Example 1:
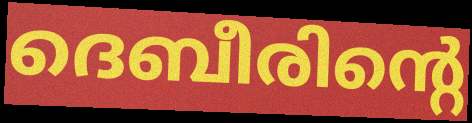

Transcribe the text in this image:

ദെബീരിന്റെ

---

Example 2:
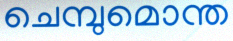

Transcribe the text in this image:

ചെമ്പുമൊന്ത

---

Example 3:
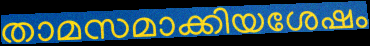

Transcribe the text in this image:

താമസമാക്കിയശേഷം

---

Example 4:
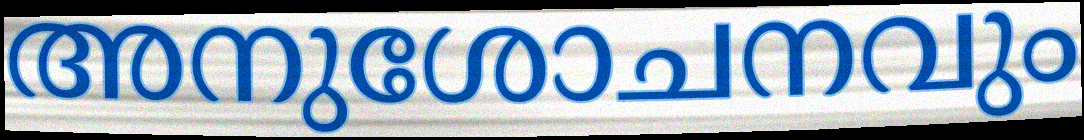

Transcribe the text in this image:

അനുശോചനവും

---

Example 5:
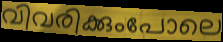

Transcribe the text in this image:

വിവരിക്കുംപോലെ